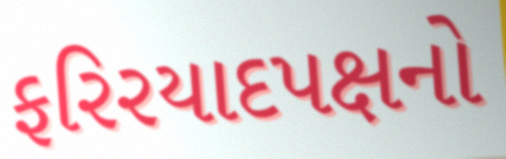
ફરિરયાદપક્ષનો